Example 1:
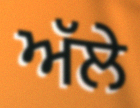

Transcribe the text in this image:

ਅੱਲੇ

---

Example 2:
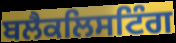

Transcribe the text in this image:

ਬਲੈਕਲਿਸਟਿੰਗ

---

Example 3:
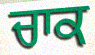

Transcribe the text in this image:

ਚਾਕ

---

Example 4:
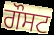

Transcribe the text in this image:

ਗੌਸਟ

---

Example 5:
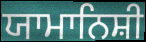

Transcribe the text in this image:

ਯਾਮਾਨਿਸ਼ੀ